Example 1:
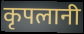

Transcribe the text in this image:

कृपलानी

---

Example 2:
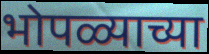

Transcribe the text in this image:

भोपळ्याच्या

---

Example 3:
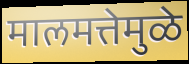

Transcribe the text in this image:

मालमत्तेमुळे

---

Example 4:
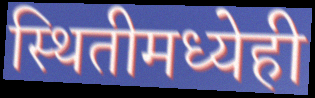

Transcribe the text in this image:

स्थितीमध्येही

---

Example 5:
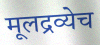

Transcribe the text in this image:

मूलद्रव्येच